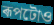
ৰূপটোও